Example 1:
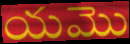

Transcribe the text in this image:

యమొ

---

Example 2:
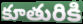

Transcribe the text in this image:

కూతురికి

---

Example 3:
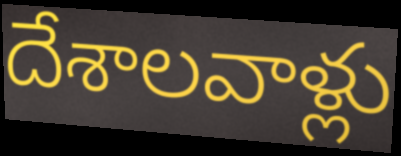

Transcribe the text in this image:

దేశాలవాళ్లు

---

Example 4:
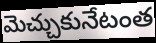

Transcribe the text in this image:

మెచ్చుకునేటంత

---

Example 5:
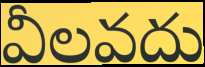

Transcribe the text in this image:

వీలవదు